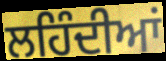
ਲਹਿੰਦੀਆਂ